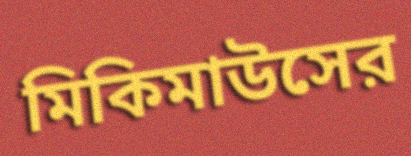
মিকিমাউসের